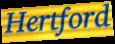
Hertford